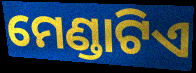
ମେଣ୍ଡାଟିଏ